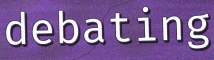
debating